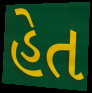
હેત